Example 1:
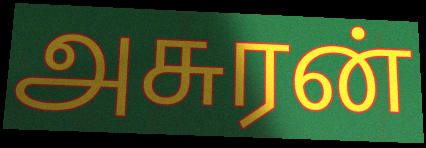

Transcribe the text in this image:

அசுரன்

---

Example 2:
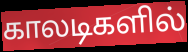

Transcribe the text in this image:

காலடிகளில்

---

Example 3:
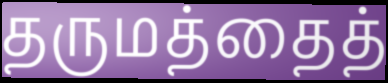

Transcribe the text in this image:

தருமத்தைத்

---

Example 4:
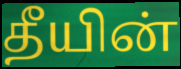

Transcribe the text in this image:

தீயின்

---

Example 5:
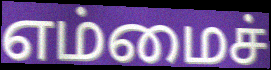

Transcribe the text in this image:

எம்மைச்